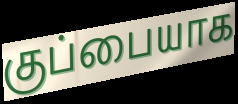
குப்பையாக